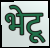
भेटू